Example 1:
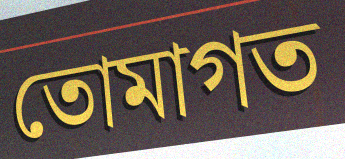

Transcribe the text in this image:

তোমাগত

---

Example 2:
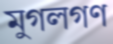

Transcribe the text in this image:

মুগলগণ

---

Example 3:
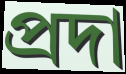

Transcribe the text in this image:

প্রদা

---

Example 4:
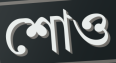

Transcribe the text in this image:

শোও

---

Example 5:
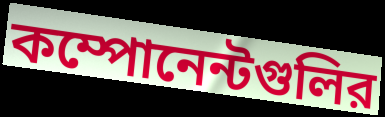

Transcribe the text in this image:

কম্পোনেন্টগুলির